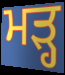
ਮੜ੍ਹ